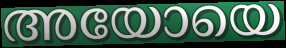
അയോയെ